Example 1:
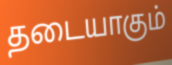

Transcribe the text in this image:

தடையாகும்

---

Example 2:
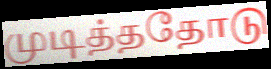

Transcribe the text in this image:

முடித்ததோடு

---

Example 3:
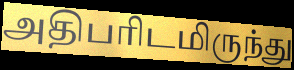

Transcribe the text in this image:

அதிபரிடமிருந்து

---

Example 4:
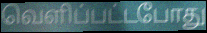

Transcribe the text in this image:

வெளிப்பட்டபோது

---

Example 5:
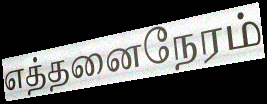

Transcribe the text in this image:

எத்தனைநேரம்